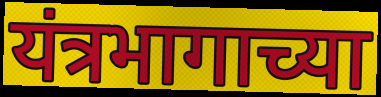
यंत्रभागाच्या